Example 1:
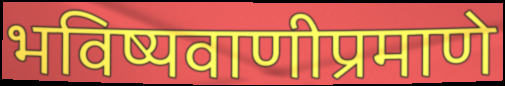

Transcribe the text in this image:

भविष्यवाणीप्रमाणे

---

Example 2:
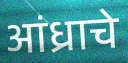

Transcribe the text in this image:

आंध्राचे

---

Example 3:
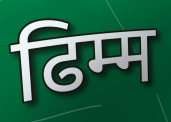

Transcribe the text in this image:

ढिम्म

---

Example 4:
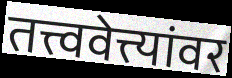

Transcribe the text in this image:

तत्त्ववेत्त्यांवर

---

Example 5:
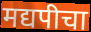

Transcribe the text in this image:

मद्यपीचा